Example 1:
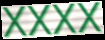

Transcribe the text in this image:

XXXX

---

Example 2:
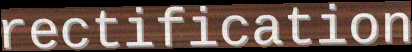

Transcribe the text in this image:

rectification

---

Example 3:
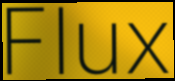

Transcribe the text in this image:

Flux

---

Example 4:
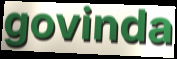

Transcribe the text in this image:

govinda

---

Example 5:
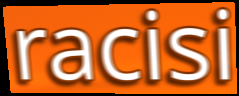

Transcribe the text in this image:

racisi